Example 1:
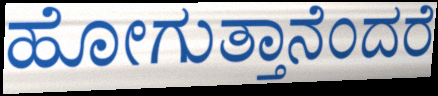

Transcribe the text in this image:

ಹೋಗುತ್ತಾನೆಂದರೆ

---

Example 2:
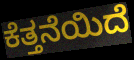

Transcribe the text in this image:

ಕೆತ್ತನೆಯಿದೆ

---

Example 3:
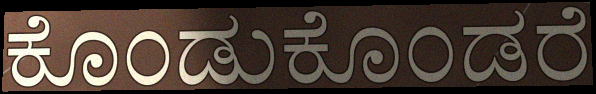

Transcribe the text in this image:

ಕೊಂಡುಕೊಂಡರೆ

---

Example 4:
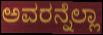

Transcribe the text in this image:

ಅವರನ್ನೆಲ್ಲಾ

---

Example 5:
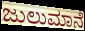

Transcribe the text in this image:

ಜುಲುಮಾನೆ